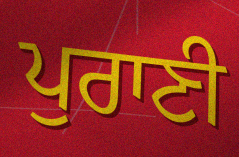
ਪੁਰਾਣੀ